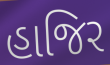
હાજિર